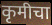
कृमीचा